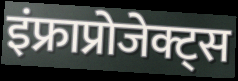
इंफ्राप्रोजेक्ट्स